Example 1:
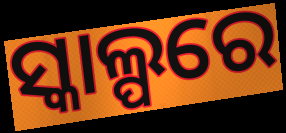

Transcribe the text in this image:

ସ୍କାଲ୍ପରେ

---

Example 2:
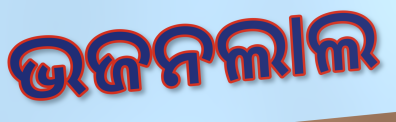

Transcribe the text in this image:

ଭଜନଲାଲ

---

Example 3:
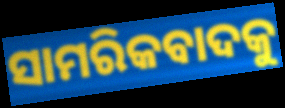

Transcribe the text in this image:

ସାମରିକବାଦକୁ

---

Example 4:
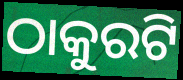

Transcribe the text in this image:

ଠାକୁରଟି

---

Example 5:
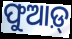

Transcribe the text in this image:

ଫୁଆଡ଼୍